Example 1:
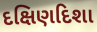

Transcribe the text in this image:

દક્ષિણદિશા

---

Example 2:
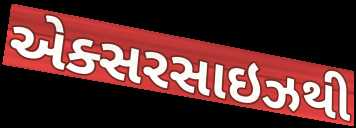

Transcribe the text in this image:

એક્સરસાઇઝથી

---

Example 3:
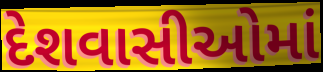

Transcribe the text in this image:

દેશવાસીઓમાં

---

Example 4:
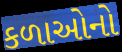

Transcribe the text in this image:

કળાઓનો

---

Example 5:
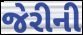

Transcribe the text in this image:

જેરીની